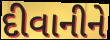
દીવાનીને